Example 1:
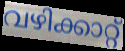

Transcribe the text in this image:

വഴിക്കാറ്റ്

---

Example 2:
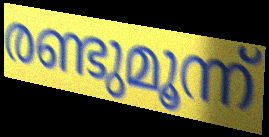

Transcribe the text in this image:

രണ്ടുമൂന്ന്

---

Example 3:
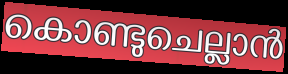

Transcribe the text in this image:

കൊണ്ടുചെല്ലാൻ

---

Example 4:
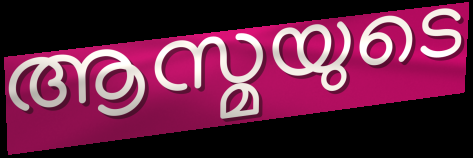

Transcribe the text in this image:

ആസ്മയുടെ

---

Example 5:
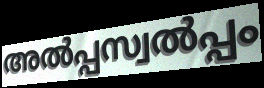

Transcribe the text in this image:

അൽപ്പസ്വൽപ്പം